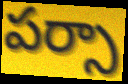
పర్సా